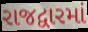
રાજદ્વારમાં